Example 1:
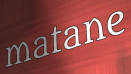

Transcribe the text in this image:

matane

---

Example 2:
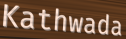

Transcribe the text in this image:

Kathwada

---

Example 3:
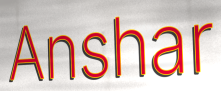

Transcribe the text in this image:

Anshar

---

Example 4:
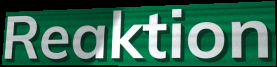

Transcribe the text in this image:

Reaktion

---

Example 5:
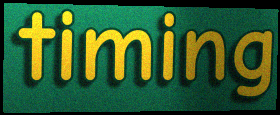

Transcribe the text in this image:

timing